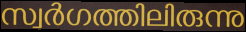
സ്വർഗത്തിലിരുന്നു